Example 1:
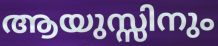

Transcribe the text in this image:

ആയുസ്സിനും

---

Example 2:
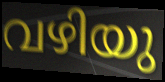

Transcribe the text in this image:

വഴിയു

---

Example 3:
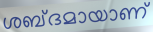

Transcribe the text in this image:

ശബ്ദമായാണ്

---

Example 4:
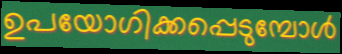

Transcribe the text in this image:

ഉപയോഗിക്കപ്പെടുമ്പോൾ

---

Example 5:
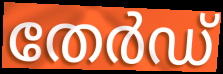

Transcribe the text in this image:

തേർഡ്